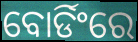
ବୋର୍ଡିଂରେ